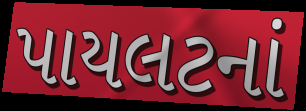
પાયલટનાં